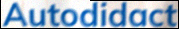
Autodidact